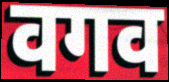
वगव